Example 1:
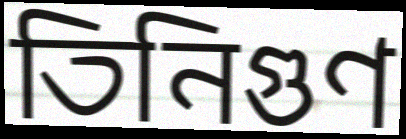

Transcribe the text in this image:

তিনিগুণ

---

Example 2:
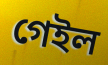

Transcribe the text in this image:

গেইল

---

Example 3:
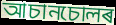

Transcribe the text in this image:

আচানচোলৰ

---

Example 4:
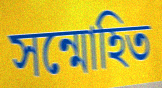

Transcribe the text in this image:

সন্মোহিত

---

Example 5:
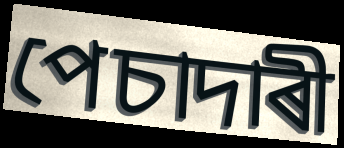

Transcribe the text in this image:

পেচাদাৰী